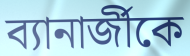
ব্যানার্জীকে